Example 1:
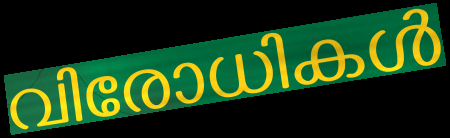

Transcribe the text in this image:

വിരോധികൾ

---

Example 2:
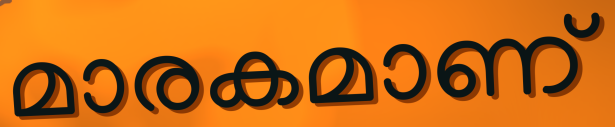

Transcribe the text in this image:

മാരകമാണ്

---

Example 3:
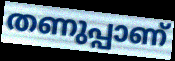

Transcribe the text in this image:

തണുപ്പാണ്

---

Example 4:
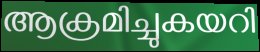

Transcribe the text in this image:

ആക്രമിച്ചുകയറി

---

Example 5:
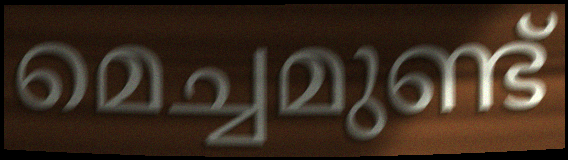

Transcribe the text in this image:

മെച്ചമുണ്ട്